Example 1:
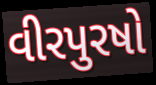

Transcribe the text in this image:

વીરપુરષો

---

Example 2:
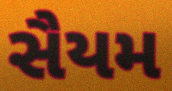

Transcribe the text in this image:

સૈયમ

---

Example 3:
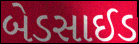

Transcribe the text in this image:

બેડસાઈડ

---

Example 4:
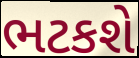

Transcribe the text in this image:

ભટકશે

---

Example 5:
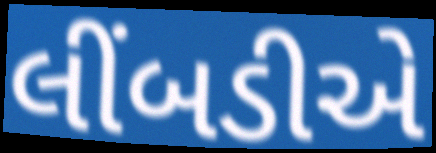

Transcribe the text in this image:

લીંબડીએ